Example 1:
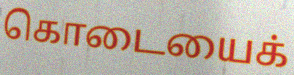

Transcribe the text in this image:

கொடையைக்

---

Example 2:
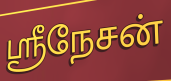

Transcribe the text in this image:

ஸ்ரீநேசன்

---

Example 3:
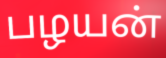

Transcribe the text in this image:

பழயன்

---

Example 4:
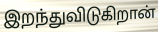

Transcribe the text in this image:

இறந்துவிடுகிறான்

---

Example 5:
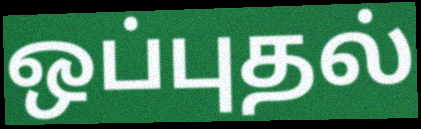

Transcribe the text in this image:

ஒப்புதல்